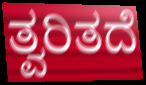
ತ್ವರಿತದೆ